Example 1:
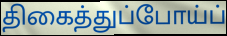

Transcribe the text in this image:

திகைத்துப்போய்ப்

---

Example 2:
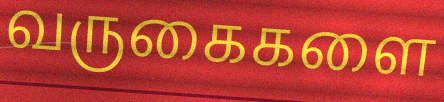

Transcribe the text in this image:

வருகைகளை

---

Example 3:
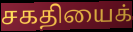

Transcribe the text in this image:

சகதியைக்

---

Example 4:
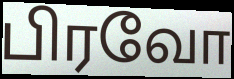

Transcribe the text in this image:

பிரவோ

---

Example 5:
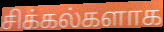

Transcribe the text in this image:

சிக்கல்களாக